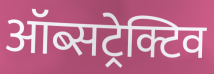
ऑब्सट्रेक्टिव